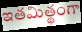
ఇతమిత్థంగా